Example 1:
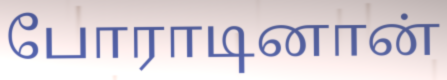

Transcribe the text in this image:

போராடினான்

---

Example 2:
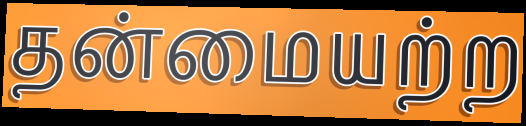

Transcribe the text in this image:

தன்மையற்ற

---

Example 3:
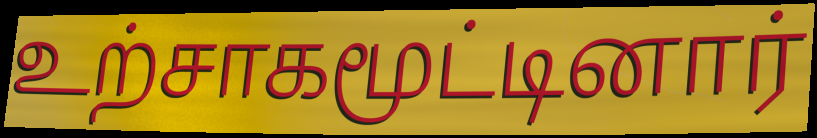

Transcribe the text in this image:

உற்சாகமூட்டினார்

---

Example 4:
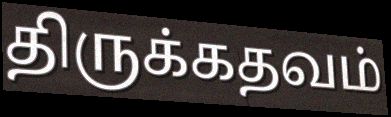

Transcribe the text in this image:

திருக்கதவம்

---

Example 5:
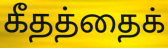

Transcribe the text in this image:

கீதத்தைக்